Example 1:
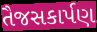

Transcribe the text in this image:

તૈજસકાર્પણ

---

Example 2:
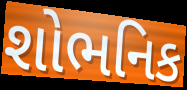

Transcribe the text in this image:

શોભનિક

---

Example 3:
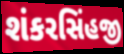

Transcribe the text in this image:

શંકરસિંહજી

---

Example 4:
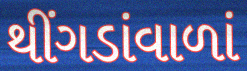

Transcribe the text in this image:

થીંગડાંવાળાં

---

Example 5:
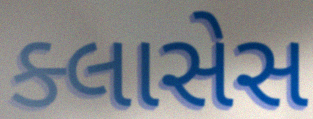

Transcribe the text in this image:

ક્લાસેસ